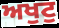
ਅਖੁਟੁ